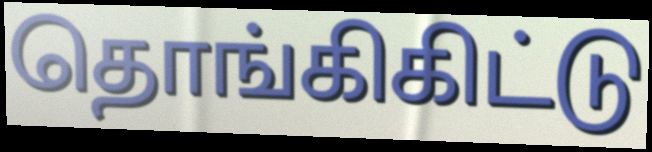
தொங்கிகிட்டு